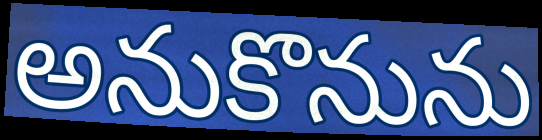
అనుకొనును